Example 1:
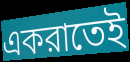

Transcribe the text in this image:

একরাতেই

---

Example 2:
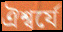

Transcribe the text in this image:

ঐশ্বর্যে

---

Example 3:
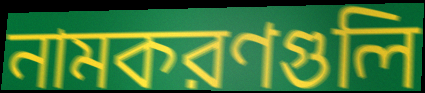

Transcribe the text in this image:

নামকরণগুলি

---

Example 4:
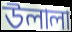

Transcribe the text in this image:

উলালা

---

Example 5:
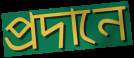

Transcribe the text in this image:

প্রদানে